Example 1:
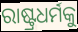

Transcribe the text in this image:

ରାଷ୍ଟ୍ରଧର୍ମକୁ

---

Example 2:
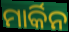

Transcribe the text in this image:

ମାର୍କିନ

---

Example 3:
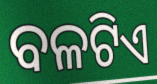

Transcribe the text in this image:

ବଳଟିଏ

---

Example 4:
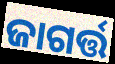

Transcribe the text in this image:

ଜାଗର୍ତ୍ତ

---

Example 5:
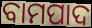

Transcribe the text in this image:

ବାମପାଦ